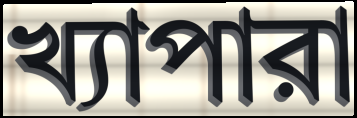
খ্যাপারা